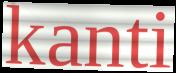
kanti